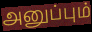
அனுப்பும்